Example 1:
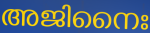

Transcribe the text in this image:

അജിനൈഃ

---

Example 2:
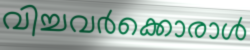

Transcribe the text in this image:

വിച്ചവർക്കൊരാൾ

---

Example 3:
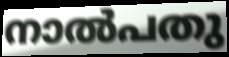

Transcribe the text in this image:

നാൽപതു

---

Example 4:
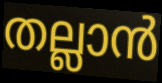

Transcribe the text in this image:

തല്ലാൻ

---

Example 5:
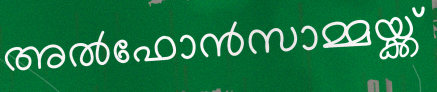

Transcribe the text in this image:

അൽഫോൻസാമ്മയ്ക്ക്